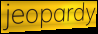
jeopardy